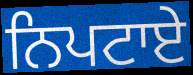
ਨਿਪਟਾਏ